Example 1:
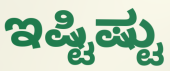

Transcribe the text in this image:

ಇಷ್ಟಿಷ್ಟು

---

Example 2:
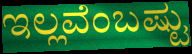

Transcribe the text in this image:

ಇಲ್ಲವೆಂಬಷ್ಟು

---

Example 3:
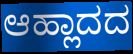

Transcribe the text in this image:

ಆಹ್ಲಾದದ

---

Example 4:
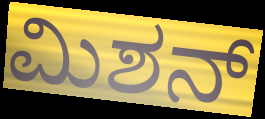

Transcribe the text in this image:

ಮಿಶನ್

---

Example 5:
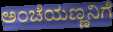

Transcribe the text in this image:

ಅಂಚೆಯಣ್ಣನಿಗೆ